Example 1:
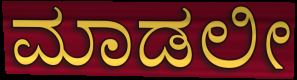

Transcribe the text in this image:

ಮಾಡಲೀ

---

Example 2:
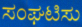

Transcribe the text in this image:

ಸಂಘಟಿಸು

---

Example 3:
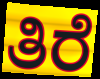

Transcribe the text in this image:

ತಿರೆ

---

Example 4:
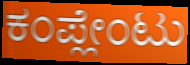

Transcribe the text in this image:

ಕಂಪ್ಲೇಂಟು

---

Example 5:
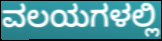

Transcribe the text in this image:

ವಲಯಗಳಲ್ಲಿ